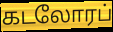
கடலோரப்